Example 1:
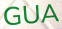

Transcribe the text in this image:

GUA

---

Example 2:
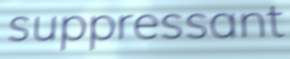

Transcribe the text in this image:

suppressant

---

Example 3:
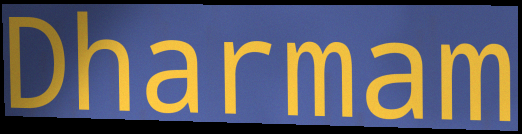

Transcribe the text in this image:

Dharmam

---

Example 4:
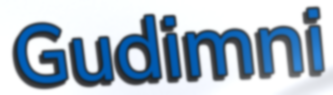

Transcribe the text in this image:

Gudimni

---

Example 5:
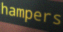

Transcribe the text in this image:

hampers